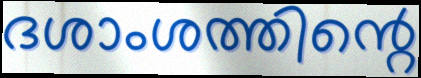
ദശാംശത്തിന്റെ